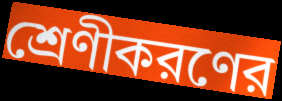
শ্রেণীকরণের